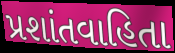
પ્રશાંતવાહિતા